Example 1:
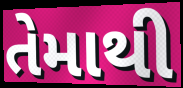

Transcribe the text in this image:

તેમાથી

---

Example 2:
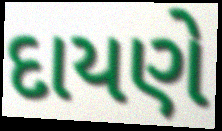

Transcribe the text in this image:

દાયણે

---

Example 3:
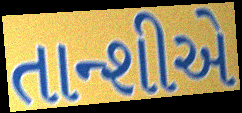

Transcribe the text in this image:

તાન્શીએ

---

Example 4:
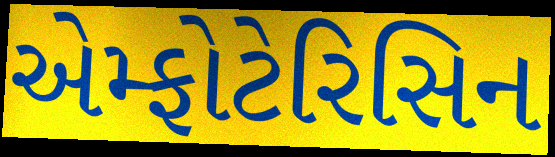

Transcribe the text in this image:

એમ્ફોટેરિસિન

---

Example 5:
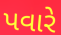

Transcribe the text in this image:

પવારે